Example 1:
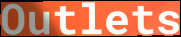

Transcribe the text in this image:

Outlets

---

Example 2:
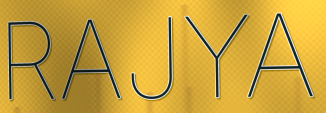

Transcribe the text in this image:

RAJYA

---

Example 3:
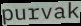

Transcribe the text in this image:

purvak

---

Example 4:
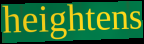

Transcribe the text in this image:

heightens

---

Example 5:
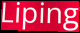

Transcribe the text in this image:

Liping